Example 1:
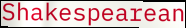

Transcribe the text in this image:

Shakespearean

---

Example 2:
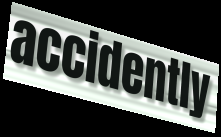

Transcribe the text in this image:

accidently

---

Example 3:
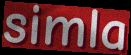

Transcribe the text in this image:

simla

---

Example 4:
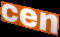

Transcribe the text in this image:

cen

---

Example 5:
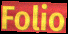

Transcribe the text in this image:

Folio